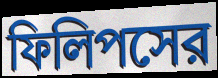
ফিলিপসের